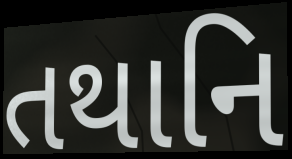
તથાનિ